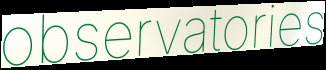
observatories